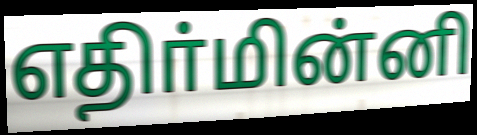
எதிர்மின்னி